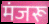
मंजरू